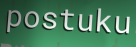
postuku